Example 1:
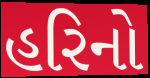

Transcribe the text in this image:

હરિનો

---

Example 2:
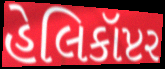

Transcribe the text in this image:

હેલિકૉપ્ટર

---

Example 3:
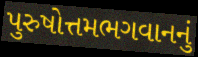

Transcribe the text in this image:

પુરુષોત્તમભગવાનનું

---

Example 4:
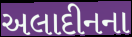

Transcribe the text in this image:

અલાદીનના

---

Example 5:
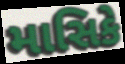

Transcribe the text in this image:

માસિકે